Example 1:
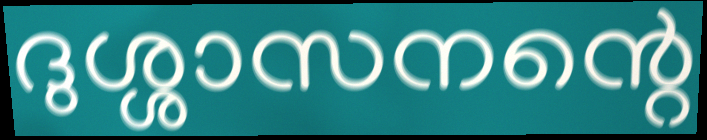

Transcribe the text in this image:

ദുശ്ശാസനന്റെ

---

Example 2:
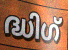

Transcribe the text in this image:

ദ്ധിഗ്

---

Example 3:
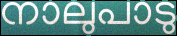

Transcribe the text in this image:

നാലുപാടു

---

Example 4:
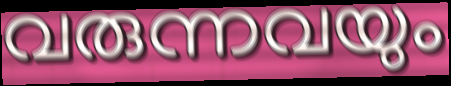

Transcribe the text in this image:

വരുന്നവയും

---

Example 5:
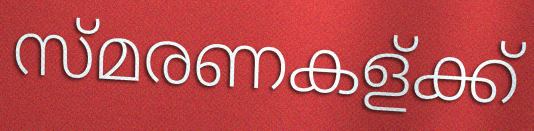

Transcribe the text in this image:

സ്മരണകള്ക്ക്